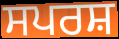
ਸਪਰਸ਼